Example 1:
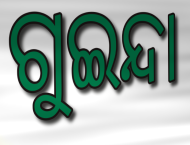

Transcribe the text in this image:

ଗୁଇନ୍ଦା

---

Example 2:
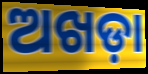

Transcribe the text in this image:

ଅଖଡ଼ା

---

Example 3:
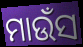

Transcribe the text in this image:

ମାଉଁସ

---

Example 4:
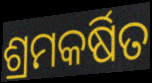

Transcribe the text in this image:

ଶ୍ରମକର୍ଷିତ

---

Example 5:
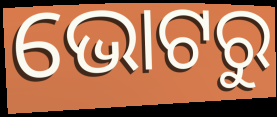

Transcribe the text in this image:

ଭୋଟରୁ